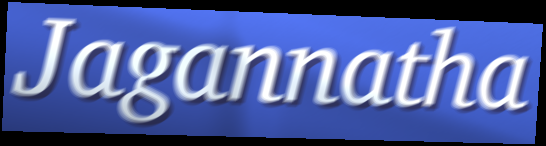
Jagannatha